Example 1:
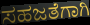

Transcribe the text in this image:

ಸಹಜತೆಗಾಗಿ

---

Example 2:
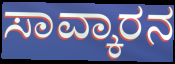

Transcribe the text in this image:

ಸಾವ್ಕಾರನ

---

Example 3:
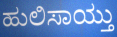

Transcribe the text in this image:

ಹುಲಿಸಾಯ್ತು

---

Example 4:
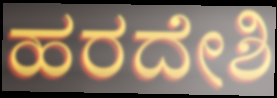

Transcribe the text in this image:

ಹರದೇಶಿ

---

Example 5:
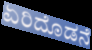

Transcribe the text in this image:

ಏರಿದೊಡನೆ